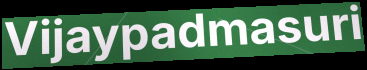
Vijaypadmasuri